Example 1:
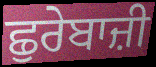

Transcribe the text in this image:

ਛੁਰੇਬਾਜ਼ੀ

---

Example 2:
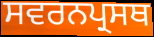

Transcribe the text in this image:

ਸਵਰਨਪ੍ਰਸਥ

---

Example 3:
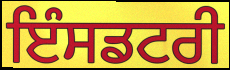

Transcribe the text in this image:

ਇੰਸਡਟਰੀ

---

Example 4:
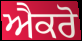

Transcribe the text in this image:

ਐਕਰੋ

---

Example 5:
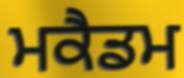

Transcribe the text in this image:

ਮਕੈਡਮ